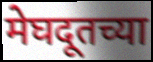
मेघदूतच्या